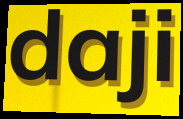
daji